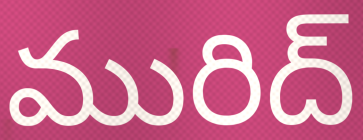
మురిద్